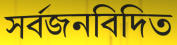
সর্বজনবিদিত